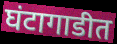
घंटागाडीत